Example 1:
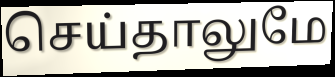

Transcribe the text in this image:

செய்தாலுமே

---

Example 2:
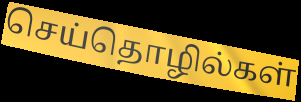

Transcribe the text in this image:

செய்தொழில்கள்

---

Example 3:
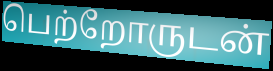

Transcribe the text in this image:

பெற்றோருடன்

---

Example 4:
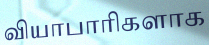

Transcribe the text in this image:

வியாபாரிகளாக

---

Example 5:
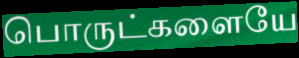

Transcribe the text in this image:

பொருட்களையே